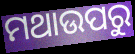
ମଥାଉପରୁ